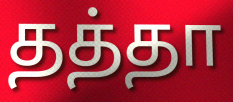
தத்தா